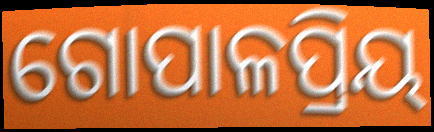
ଗୋପାଳପ୍ରିୟ